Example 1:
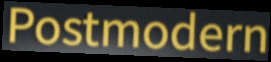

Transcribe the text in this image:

Postmodern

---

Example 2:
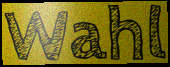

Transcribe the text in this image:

Wahl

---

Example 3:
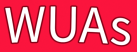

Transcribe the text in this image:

WUAs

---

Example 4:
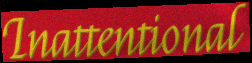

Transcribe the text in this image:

Inattentional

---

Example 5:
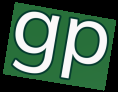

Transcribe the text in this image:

gp